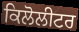
ਕਿਲੋਲੀਟਰ